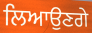
ਲਿਆਉਣਗੇ